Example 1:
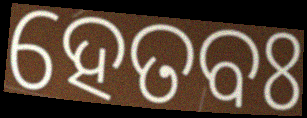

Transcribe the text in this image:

ହେତବଃ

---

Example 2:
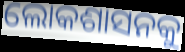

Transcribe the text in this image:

ଲୋକଶାସନକୁ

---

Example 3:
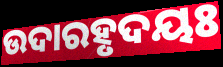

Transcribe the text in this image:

ଉଦାରହୃଦୟଃ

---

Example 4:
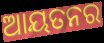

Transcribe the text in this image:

ଆୟତନର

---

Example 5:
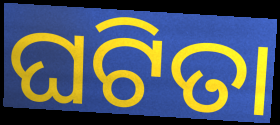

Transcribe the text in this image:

ଘଟିତା